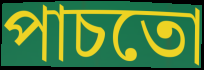
পাচতো